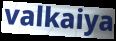
valkaiya